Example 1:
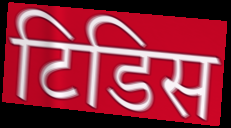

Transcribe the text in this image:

टिडिस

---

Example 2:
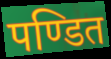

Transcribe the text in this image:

पण्डित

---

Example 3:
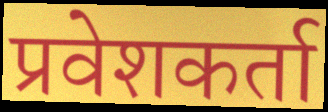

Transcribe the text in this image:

प्रवेशकर्ता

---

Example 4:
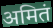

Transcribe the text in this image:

अमितं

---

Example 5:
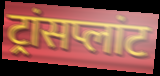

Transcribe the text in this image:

ट्रांसप्लांट